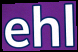
ehl